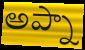
అప్నా